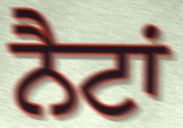
ਨੈਟਾਂ